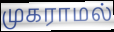
முகராமல்